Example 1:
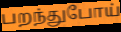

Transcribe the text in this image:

பறந்துபோய்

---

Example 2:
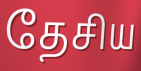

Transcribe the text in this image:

தேசிய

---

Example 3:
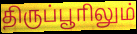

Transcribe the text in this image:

திருப்பூரிலும்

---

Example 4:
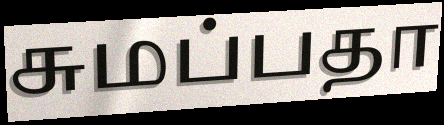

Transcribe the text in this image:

சுமப்பதா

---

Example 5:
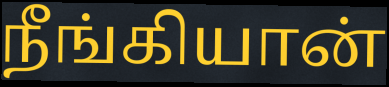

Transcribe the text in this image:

நீங்கியான்